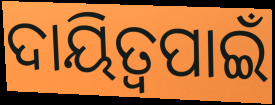
ଦାୟିତ୍ୱପାଇଁ